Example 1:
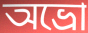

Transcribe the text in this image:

অভ্রো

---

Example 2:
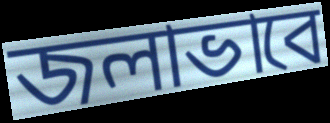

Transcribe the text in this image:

জলাভাবে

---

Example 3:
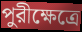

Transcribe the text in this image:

পুরীক্ষেত্রে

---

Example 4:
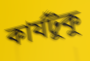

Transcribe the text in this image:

কার্যটুকু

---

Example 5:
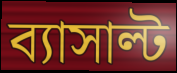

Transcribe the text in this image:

ব্যাসাল্ট